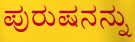
ಪುರುಷನನ್ನು